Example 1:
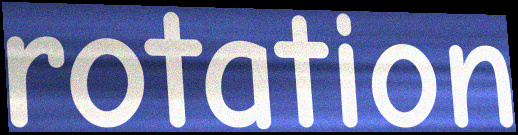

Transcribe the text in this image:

rotation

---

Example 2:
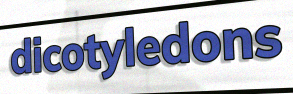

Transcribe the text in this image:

dicotyledons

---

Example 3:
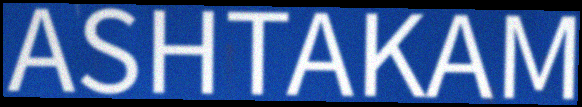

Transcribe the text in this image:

ASHTAKAM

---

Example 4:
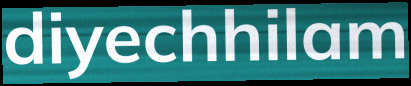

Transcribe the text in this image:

diyechhilam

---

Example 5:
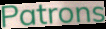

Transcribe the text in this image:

Patrons